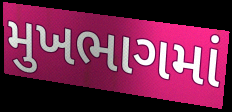
મુખભાગમાં